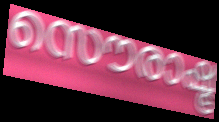
സൌരാഷ്ട്ര